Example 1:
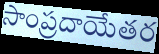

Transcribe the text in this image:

సాంప్రదాయేతర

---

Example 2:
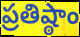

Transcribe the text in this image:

ప్రతిష్ఠాం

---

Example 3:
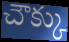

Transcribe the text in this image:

చౌక్కు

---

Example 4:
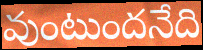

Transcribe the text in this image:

వుంటుందనేది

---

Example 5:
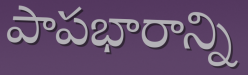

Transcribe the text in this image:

పాపభారాన్ని